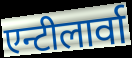
एन्टीलार्वा